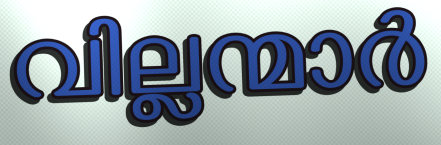
വില്ലന്മാർ